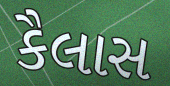
કૈલાસ